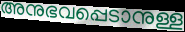
അനുഭവപ്പെടാനുള്ള